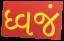
ધ્વજં